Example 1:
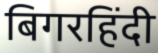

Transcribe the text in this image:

बिगरहिंदी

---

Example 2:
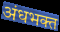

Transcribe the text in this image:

अंधभक्त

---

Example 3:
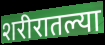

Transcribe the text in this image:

शरीरातल्या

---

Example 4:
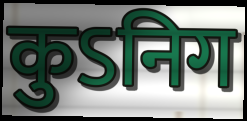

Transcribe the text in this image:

कुऽनिग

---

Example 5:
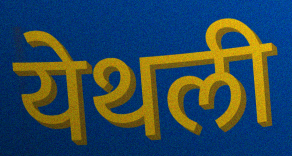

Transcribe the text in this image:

येथली